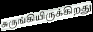
சுருங்கியிருக்கிறது